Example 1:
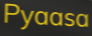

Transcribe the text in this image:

Pyaasa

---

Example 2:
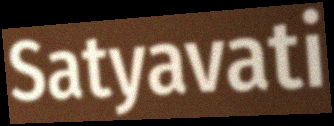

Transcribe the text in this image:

Satyavati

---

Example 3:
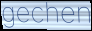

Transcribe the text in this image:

gechen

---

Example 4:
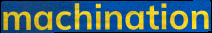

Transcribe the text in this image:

machination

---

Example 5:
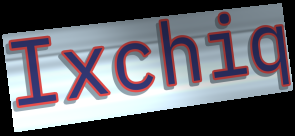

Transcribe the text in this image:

Ixchiq